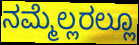
ನಮ್ಮೆಲ್ಲರಲ್ಲೂ